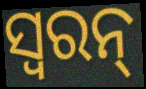
ସ୍ୱରନ୍